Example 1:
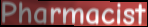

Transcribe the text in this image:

Pharmacist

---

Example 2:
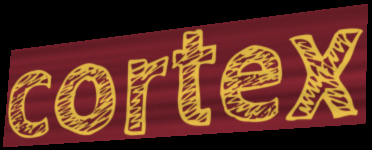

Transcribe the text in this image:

cortex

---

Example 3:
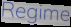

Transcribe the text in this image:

Regime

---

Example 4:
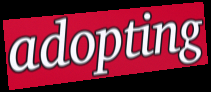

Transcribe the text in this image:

adopting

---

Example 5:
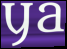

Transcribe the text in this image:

ya